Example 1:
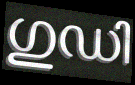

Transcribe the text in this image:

ഗുഡി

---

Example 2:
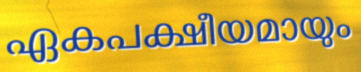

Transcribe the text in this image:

ഏകപക്ഷീയമായും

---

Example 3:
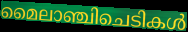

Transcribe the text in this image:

മൈലാഞ്ചിചെടികൾ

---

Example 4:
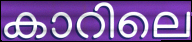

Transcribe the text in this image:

കാറിലെ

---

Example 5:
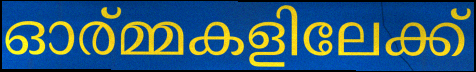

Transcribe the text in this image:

ഓര്മ്മകളിലേക്ക്